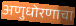
अणुधोरणाचा